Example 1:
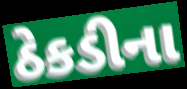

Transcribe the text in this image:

ઠેકડીના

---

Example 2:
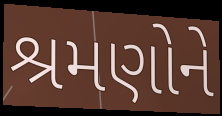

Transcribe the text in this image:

શ્રમણોને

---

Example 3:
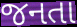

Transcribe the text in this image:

જનતા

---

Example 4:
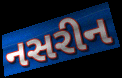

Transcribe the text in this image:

નસરીન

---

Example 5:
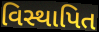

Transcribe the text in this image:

વિસ્થાપિત